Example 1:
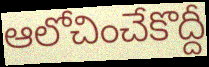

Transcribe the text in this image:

ఆలోచించేకొద్దీ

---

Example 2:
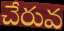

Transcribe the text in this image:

చేరువ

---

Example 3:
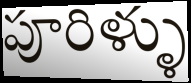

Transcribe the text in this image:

పూరిళ్ళు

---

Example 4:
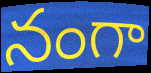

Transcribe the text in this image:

నంగా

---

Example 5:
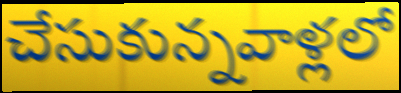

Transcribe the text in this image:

చేసుకున్నవాళ్లలో